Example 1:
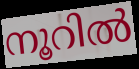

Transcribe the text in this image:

നൂറിൽ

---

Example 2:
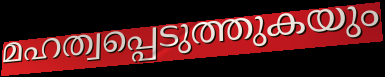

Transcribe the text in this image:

മഹത്വപ്പെടുത്തുകയും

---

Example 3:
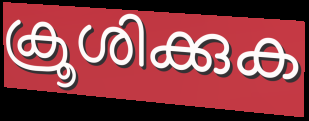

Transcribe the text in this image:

ക്രൂശിക്കുക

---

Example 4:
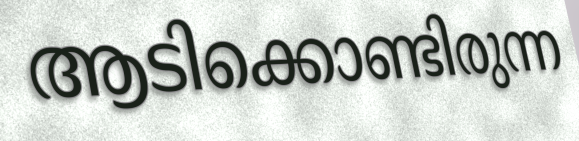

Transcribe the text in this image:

ആടിക്കൊണ്ടിരുന്ന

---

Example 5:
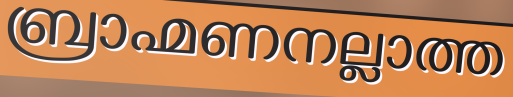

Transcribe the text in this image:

ബ്രാഹ്മണനല്ലാത്ത